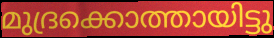
മുദ്രക്കൊത്തായിട്ടു